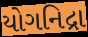
યોગનિદ્રા